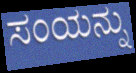
ಸಂಯನ್ನು